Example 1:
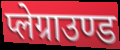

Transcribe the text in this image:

प्लेग्राउण्ड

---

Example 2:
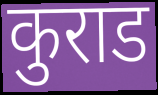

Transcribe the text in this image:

कुराड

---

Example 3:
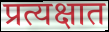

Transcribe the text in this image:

प्रत्यक्षात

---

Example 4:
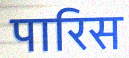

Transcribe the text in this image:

पारिस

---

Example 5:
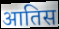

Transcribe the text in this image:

आतिस